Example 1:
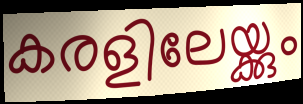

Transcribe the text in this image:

കരളിലേയ്ക്കും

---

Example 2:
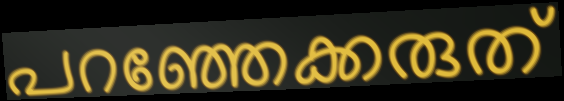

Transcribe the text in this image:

പറഞ്ഞേക്കരുത്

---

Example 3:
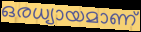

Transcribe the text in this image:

ഒരധ്യായമാണ്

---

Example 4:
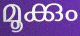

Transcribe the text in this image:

മൂക്കും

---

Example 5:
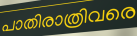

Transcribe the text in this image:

പാതിരാത്രിവരെ